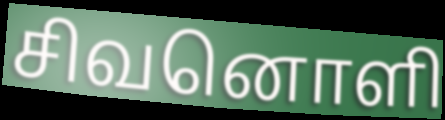
சிவனொளி